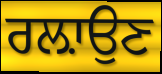
ਰਲ਼ਾਉਣ